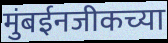
मुंबईनजीकच्या